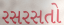
રસરસતો